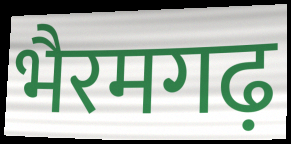
भैरमगढ़